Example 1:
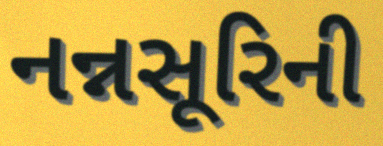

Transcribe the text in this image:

નન્નસૂરિની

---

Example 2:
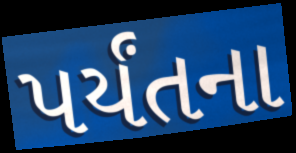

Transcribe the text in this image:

પર્યંતના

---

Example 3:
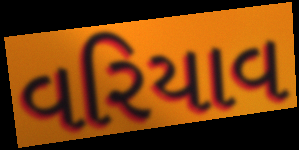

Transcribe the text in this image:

વરિયાવ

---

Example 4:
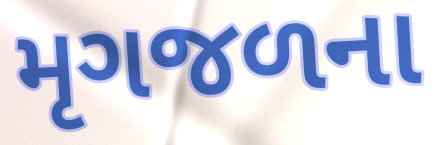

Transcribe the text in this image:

મૃગજળના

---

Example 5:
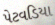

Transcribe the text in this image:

પેટવડિયા